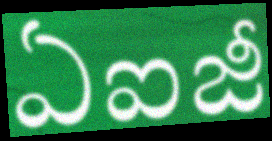
ఏఐజీ